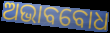
ଅଭାବବୋଧ